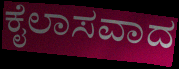
ಕೈಲಾಸವಾದ